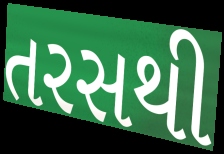
તરસથી